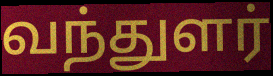
வந்துளர்